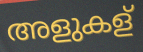
അളുകള്